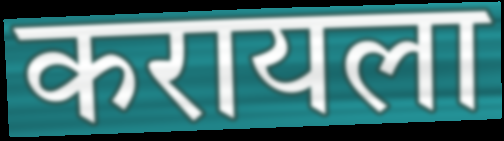
करायला